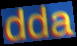
dda